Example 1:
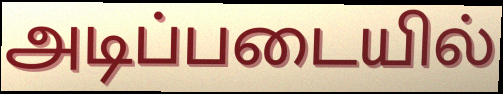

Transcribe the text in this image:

அடிப்படையில்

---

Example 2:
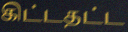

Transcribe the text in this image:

கிட்டதட்ட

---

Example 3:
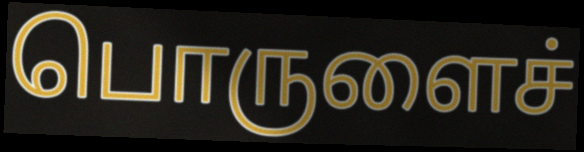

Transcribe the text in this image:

பொருளைச்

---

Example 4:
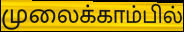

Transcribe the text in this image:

முலைக்காம்பில்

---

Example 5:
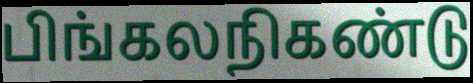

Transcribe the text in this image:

பிங்கலநிகண்டு